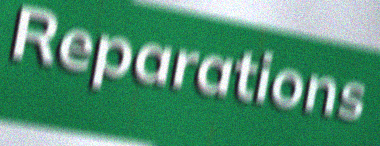
Reparations